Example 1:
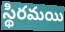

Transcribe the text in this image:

స్థిరమయి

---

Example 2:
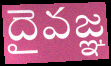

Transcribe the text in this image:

దైవజ్ఞ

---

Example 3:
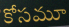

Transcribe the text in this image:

కోసమూ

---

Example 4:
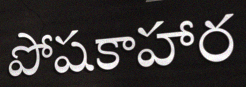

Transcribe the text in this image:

పోషకాహార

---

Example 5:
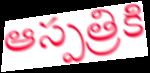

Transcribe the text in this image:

ఆస్పత్రికి